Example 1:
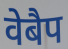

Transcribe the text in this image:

वेबैप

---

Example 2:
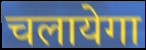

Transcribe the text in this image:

चलायेगा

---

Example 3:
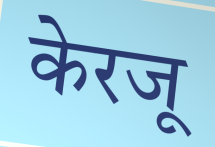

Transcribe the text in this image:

केरजू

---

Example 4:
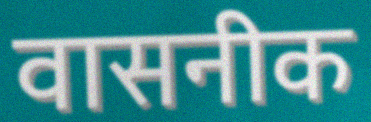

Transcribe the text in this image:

वासनीक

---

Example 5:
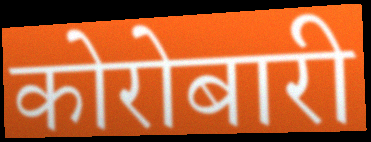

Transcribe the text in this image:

कोरोबारी